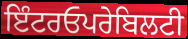
ਇੰਟਰਓਪਰੇਬਿਲਟੀ